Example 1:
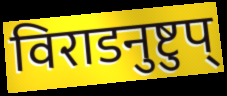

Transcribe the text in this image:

विराडनुष्टुप्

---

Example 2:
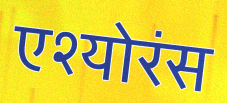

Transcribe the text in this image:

एश्योरंस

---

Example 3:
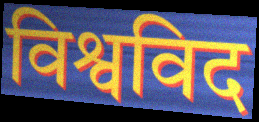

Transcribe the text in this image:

विश्वविद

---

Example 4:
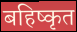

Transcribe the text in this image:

बहिष्कृत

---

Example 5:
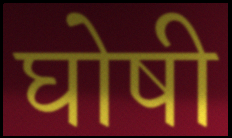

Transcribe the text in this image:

घोषी